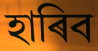
হাৰিব